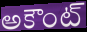
అకౌంట్